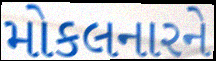
મોકલનારને